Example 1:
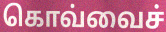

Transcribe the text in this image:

கொவ்வைச்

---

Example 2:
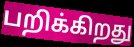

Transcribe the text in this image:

பறிக்கிறது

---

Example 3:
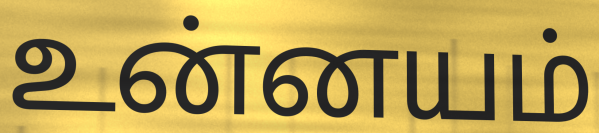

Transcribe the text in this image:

உன்னயம்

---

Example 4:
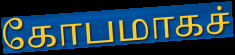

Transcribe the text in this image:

கோபமாகச்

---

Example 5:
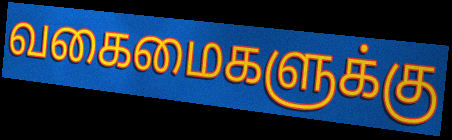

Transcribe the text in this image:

வகைமைகளுக்கு